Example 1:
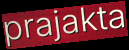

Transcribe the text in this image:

prajakta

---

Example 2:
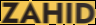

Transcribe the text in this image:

ZAHID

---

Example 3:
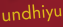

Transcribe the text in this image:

undhiyu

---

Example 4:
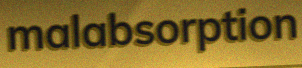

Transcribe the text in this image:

malabsorption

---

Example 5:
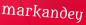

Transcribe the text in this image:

markandey